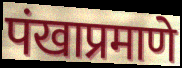
पंखाप्रमाणे